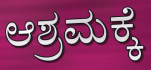
ಆಶ್ರಮಕ್ಕೆ